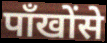
पाँखोंसे